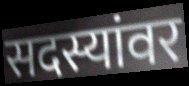
सदस्यांवर